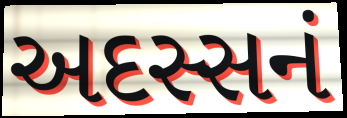
અદસ્સનં